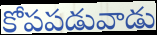
కోపపడువాడు